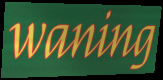
waning